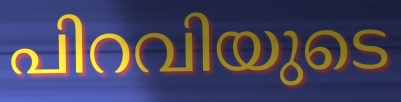
പിറവിയുടെ